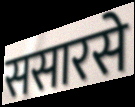
ससारसे